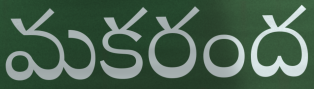
మకరంద